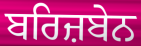
ਬਰਿਜ਼ਬੇਨ